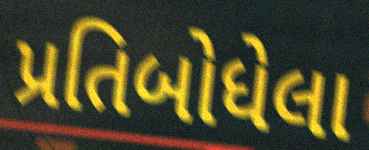
પ્રતિબોધેલા